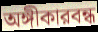
অঙ্গীকারবন্ধ